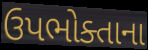
ઉપભોક્તાના